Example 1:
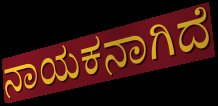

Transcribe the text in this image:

ನಾಯಕನಾಗಿದೆ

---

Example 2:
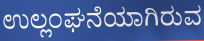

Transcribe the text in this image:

ಉಲ್ಲಂಘನೆಯಾಗಿರುವ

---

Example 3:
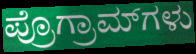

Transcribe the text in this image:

ಪ್ರೊಗ್ರಾಮ್‌ಗಳು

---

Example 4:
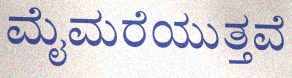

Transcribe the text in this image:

ಮೈಮರೆಯುತ್ತವೆ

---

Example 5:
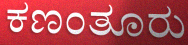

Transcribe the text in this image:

ಕಣಂತೂರು